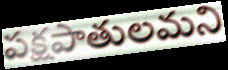
పక్షపాతులమని